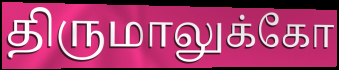
திருமாலுக்கோ